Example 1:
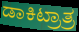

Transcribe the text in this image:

ಡಾಕಿಟ್ರಾತ್ರ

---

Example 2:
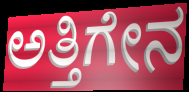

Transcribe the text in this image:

ಅತ್ತಿಗೇನ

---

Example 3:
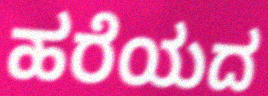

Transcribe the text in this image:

ಹರೆಯದ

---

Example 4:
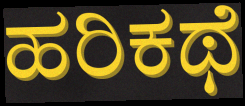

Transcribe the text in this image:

ಹರಿಕಥೆ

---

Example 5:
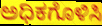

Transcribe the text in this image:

ಅಧಿಕಗೊಳಿಸಿ